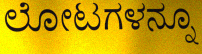
ಲೋಟಗಳನ್ನೂ